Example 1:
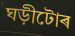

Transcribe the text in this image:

ঘড়ীটোৰ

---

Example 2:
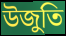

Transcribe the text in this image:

উজুতি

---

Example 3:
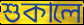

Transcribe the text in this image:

শুকালে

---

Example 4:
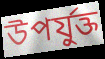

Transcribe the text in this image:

উপৰ্যুক্ত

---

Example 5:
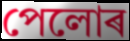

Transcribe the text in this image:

পেলোৰ